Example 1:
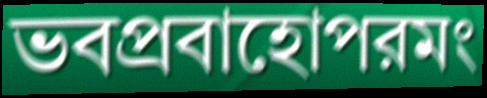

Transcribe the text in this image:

ভবপ্রবাহোপরমং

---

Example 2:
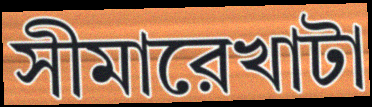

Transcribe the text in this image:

সীমারেখাটা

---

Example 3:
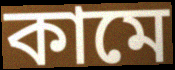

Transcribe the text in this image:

কামে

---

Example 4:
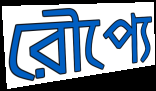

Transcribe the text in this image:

রৌপ্যে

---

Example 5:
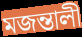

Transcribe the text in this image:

মজন্তালী